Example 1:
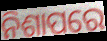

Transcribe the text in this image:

ନିଶାପରେ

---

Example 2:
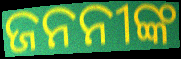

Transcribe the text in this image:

ଜନନୀଙ୍କ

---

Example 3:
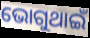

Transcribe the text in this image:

ଭୋଗୁଥାଇଁ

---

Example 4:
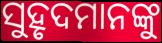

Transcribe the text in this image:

ସୁହୃଦମାନଙ୍କୁ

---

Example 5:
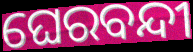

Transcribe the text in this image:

ଘେରବନ୍ଦୀ